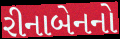
રીનાબેનનો